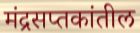
मंद्रसप्तकांतील